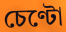
চেণ্টো